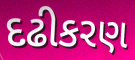
દઢીકરણ